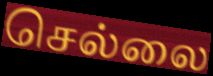
செல்லை